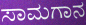
ಸಾಮಗಾನ